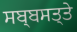
ਸਬ੍ਬਸਤ੍ਤੇ